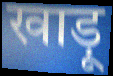
खाड़ू